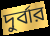
দুর্বার